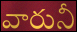
వారునీ